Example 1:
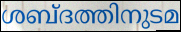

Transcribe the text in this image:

ശബ്ദത്തിനുടമ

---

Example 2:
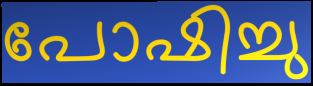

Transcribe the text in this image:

പോഷിച്ചു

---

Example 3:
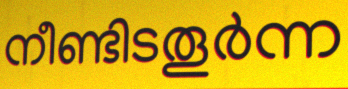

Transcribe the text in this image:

നീണ്ടിടതൂർന്ന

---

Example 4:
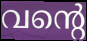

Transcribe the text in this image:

വന്റെ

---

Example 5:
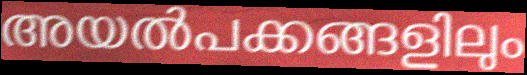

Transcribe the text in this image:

അയൽപക്കങ്ങളിലും